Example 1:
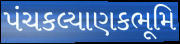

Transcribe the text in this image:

પંચકલ્યાણકભૂમિ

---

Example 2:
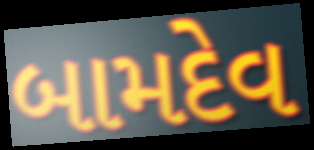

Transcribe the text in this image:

બામદેવ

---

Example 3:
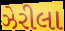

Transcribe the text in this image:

ઝેરીલા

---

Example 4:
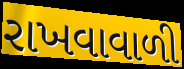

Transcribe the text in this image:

રાખવાવાળી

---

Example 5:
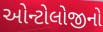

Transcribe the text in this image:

ઓન્ટોલોજીનો